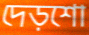
দেড়শো